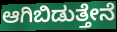
ಆಗಿಬಿಡುತ್ತೇನೆ